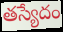
తస్యేదం